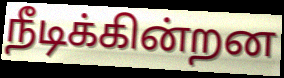
நீடிக்கின்றன